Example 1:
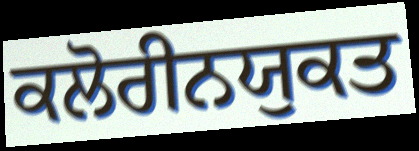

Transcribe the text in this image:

ਕਲੋਰੀਨਯੁਕਤ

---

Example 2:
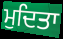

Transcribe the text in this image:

ਮੁਦਿਤਾ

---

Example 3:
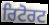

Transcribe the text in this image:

ਰਿਟੋਰਟ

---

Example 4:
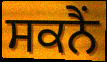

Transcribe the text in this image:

ਸਕਨੈਂ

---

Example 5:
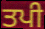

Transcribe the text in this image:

ਤਪੀ